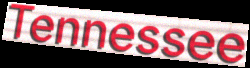
Tennessee